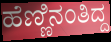
ಹೆಣ್ಣಿನಂತಿದ್ದ